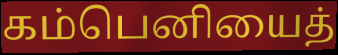
கம்பெனியைத்